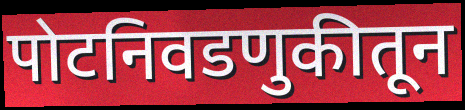
पोटनिवडणुकीतून